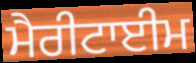
ਮੈਰੀਟਾਈਮ